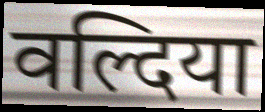
वल्दिया